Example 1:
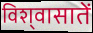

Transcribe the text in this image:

विश्वासातें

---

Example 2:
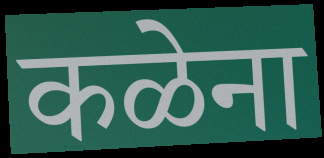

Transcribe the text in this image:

कळेना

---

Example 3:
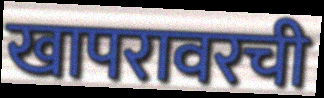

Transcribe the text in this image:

खापरावरची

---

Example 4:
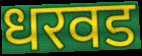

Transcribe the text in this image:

धरवड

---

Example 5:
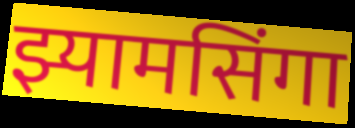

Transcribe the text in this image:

झ्यामसिंगा